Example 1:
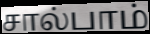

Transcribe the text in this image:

சால்பாம்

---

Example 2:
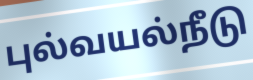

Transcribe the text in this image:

புல்வயல்நீடு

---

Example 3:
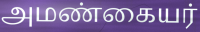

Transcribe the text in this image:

அமண்கையர்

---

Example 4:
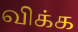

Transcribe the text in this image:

விக்க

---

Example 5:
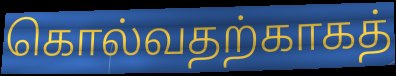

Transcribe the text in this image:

கொல்வதற்காகத்